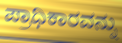
ಪ್ರಾಧಿಕಾರವನ್ನು